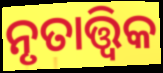
ନୃତାତ୍ତ୍ବିକ